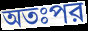
অতঃপর